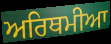
ਅਰਿਥਮੀਆ